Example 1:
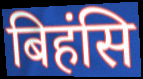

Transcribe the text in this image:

बिहंसि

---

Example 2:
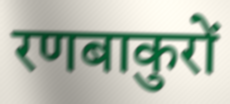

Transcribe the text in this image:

रणबाकुरों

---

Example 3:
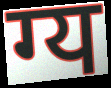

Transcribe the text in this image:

ग्य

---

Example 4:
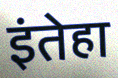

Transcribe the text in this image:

इंतेहा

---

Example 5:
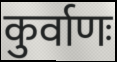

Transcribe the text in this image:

कुर्वाणः